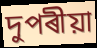
দুপৰীয়া